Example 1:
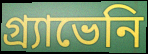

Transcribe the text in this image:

গ্র্যাভেনি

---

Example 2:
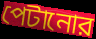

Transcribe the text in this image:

পেটানোর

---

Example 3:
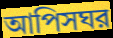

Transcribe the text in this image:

আপিসঘর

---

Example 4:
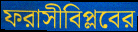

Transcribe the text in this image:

ফরাসীবিপ্লবের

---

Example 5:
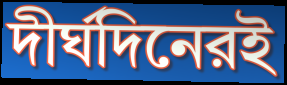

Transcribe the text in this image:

দীর্ঘদিনেরই